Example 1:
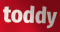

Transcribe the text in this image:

toddy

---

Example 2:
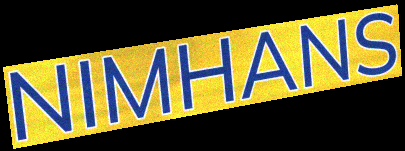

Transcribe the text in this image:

NIMHANS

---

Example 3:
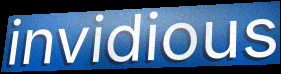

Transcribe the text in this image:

invidious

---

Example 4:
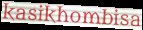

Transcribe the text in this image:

kasikhombisa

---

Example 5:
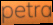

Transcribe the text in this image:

petra